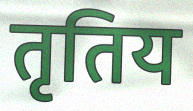
तृतिय